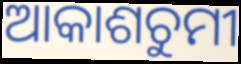
ଆକାଶଚୁମୀ